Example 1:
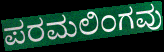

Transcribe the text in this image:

ಪರಮಲಿಂಗವು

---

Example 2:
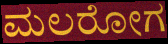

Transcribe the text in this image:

ಮಲರೋಗ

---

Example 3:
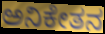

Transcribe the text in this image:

ಅನಿಕೇತನ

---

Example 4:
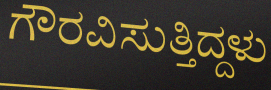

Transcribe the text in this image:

ಗೌರವಿಸುತ್ತಿದ್ದಳು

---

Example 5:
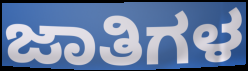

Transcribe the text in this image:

ಜಾತಿಗಳ